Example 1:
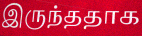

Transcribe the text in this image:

இருந்ததாக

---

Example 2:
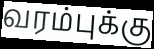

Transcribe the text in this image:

வரம்புக்கு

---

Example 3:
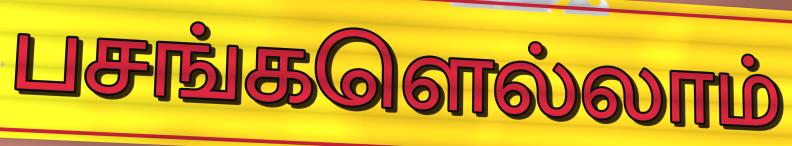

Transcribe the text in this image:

பசங்களெல்லாம்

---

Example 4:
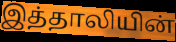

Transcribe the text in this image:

இத்தாலியின்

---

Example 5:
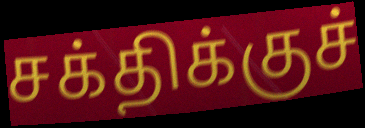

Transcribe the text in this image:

சக்திக்குச்